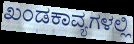
ಖಂಡಕಾವ್ಯಗಳಲ್ಲಿ